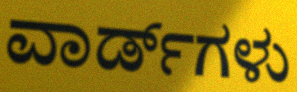
ವಾರ್ಡ್‌ಗಳು